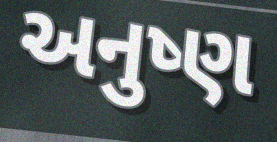
અનુષ્ણ